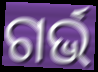
ଗର୍ଭ